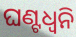
ଘଣ୍ଟଧ୍ୱନି